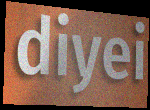
diyei